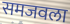
समजवला